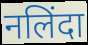
नलिंदा